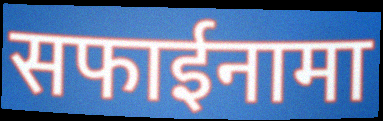
सफाईनामा